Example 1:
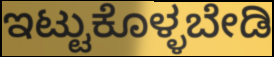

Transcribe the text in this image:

ಇಟ್ಟುಕೊಳ್ಳಬೇಡಿ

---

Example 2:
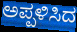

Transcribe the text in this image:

ಅಪ್ಪಳಿಸಿದ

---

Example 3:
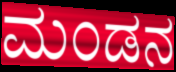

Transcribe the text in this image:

ಮಂಡನ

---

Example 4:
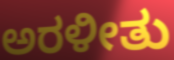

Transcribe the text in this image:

ಅರಳೀತು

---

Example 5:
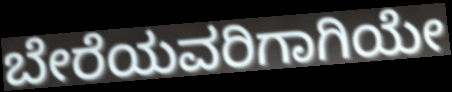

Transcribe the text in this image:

ಬೇರೆಯವರಿಗಾಗಿಯೇ